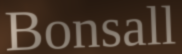
Bonsall